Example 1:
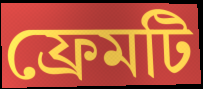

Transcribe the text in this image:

ফ্রেমটি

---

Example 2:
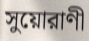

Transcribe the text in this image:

সুয়োরাণী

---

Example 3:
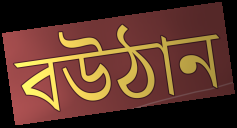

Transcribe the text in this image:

বউঠান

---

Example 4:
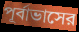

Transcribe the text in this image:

পূর্বাভাসের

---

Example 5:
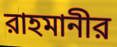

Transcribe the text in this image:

রাহমানীর